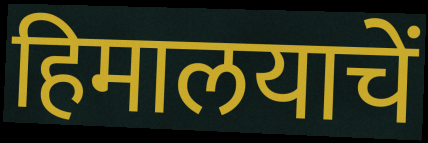
हिमालयाचें